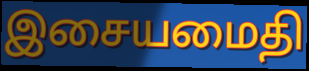
இசையமைதி